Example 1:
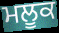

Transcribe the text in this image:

ਮਲੂਕ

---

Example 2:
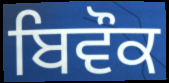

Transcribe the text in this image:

ਬਿਵੌਕ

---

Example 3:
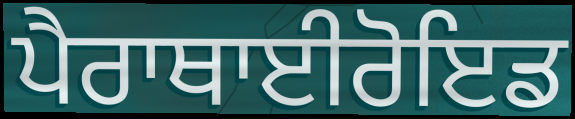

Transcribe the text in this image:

ਪੈਰਾਥਾਈਰੋਇਡ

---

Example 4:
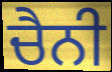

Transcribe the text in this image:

ਚੈਨੀ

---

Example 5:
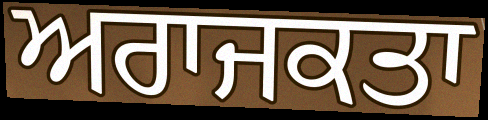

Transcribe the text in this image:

ਅਰਾਜਕਤਾ